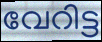
വേറിട്ട